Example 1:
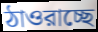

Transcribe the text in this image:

ঠাওরাচ্ছে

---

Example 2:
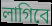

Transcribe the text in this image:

লাগিবে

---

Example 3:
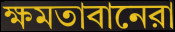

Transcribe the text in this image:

ক্ষমতাবানেরা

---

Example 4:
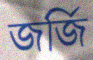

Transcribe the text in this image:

জর্জি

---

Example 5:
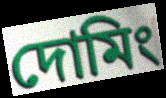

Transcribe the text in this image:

দোমিং